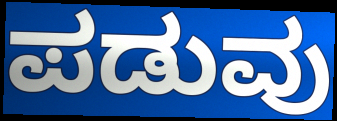
ಪಡುವು